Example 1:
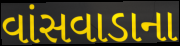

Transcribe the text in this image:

વાંસવાડાના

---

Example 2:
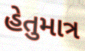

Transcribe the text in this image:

હેતુમાત્ર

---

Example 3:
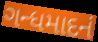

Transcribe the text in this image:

ગન્ધમાદનં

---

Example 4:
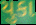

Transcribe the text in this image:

યુકા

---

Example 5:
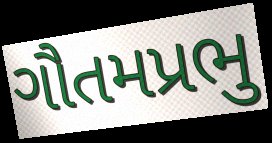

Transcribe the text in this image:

ગૌતમપ્રભુ